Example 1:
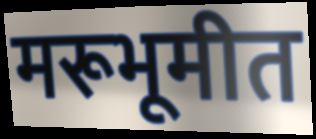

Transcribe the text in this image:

मरूभूमीत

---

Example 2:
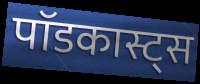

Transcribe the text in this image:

पॉडकास्ट्स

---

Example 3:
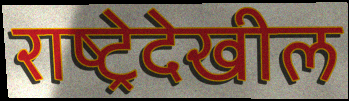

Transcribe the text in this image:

राष्ट्रेदेखील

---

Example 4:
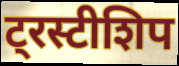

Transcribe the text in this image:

ट्रस्टीशिप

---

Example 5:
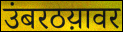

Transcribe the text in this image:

उंबरठय़ावर